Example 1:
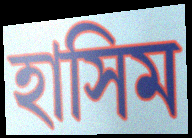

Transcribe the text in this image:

হাসিম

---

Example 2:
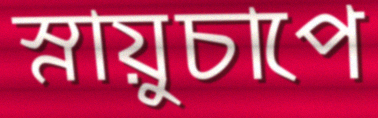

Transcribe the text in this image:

স্নায়ুচাপে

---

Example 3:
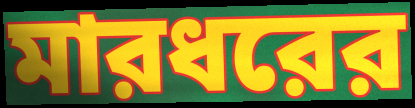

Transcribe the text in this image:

মারধরের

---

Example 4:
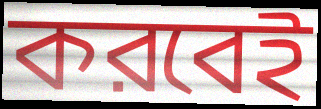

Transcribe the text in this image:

করবেই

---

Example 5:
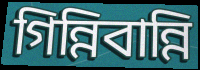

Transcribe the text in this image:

গিন্নিবান্নি